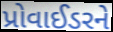
પ્રોવાઈડરને